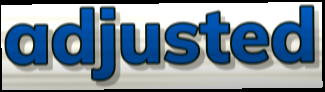
adjusted